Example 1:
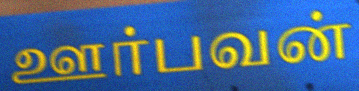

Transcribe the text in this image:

ஊர்பவன்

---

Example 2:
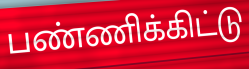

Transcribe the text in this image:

பண்ணிக்கிட்டு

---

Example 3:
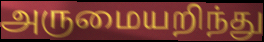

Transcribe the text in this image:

அருமையறிந்து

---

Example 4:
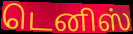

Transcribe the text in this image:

டெனிஸ்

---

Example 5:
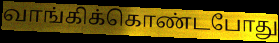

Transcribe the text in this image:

வாங்கிக்கொண்டபோது